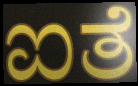
ಐತೆ